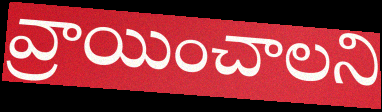
వ్రాయించాలని